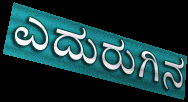
ಎದುರುಗಿನ